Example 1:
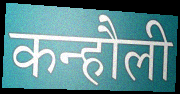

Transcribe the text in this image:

कन्हौली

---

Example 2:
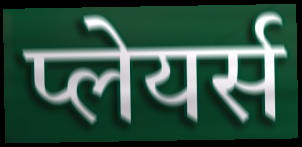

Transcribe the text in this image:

प्‍लेयर्स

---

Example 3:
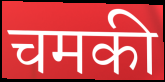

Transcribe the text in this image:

चमकी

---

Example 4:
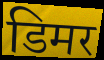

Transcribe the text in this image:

डिमर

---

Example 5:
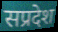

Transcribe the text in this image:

सप्रदेश